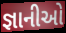
જ્ઞાનીઓ